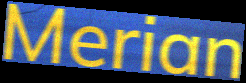
Merian